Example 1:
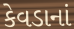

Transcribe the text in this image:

કેવડાનાં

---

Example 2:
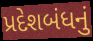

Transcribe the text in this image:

પ્રદેશબંધનું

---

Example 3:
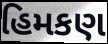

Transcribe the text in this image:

હિમકણ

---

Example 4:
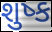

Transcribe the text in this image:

શુષ્ક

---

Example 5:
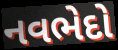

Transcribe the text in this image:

નવભેદો